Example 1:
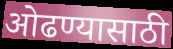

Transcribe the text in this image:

ओढण्यासाठी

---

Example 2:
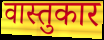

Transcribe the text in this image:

वास्तुकार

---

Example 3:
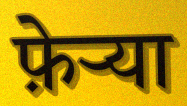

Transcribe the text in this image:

फ़ेर्‍या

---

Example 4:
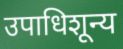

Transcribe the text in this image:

उपाधिशून्य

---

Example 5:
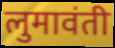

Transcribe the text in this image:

लुमावंती